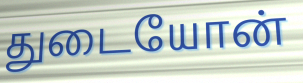
துடையோன்